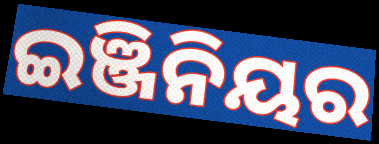
ଇଞ୍ଜିନିୟର